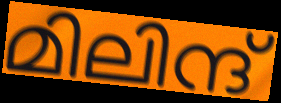
മിലിന്ദ്